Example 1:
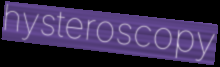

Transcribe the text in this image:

hysteroscopy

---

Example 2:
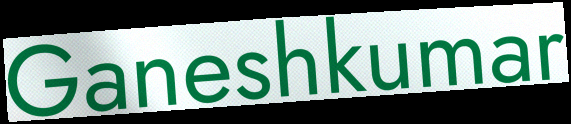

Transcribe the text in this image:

Ganeshkumar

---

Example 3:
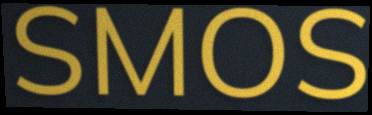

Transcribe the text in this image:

SMOS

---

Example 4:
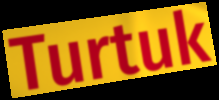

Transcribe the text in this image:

Turtuk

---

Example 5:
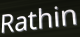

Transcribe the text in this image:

Rathin